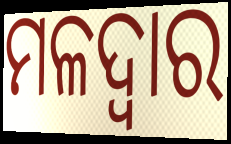
ମଳଦ୍ଵାର